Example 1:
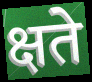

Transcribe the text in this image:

क्षते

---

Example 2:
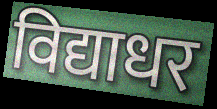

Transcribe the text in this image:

विद्याधर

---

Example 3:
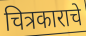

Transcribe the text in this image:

चित्रकाराचे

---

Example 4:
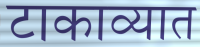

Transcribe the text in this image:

टाकाव्यात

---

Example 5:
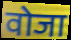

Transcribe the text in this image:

वोजा